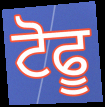
ਟੋਫੂ